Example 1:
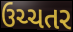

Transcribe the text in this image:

ઉચ્ચતર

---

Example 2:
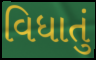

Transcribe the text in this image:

વિધાતું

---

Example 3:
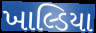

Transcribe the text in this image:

ખાલ્ડિયા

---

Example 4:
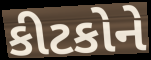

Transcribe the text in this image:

કીટકોને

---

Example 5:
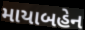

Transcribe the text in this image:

માયાબહેન